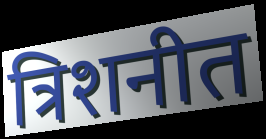
त्रिशनीत